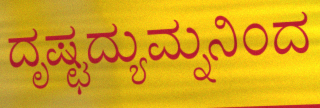
ದೃಷ್ಟದ್ಯುಮ್ನನಿಂದ